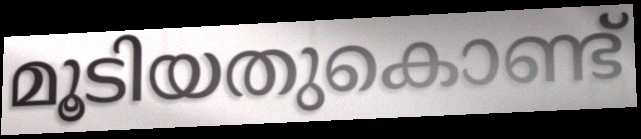
മൂടിയതുകൊണ്ട്